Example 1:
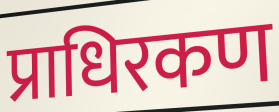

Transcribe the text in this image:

प्राधिरकण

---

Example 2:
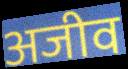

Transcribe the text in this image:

अजीव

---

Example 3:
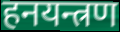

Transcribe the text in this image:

हनयन्त्रण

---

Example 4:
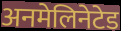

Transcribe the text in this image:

अनमेलिनेटेड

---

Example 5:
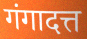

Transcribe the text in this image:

गंगादत्त